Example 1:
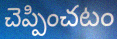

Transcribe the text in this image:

చెప్పించటం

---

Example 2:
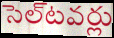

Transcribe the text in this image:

సెల్‌టవర్లు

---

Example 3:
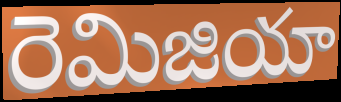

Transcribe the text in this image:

రెమిజియా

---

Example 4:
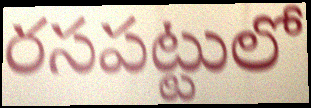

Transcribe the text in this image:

రసపట్టులో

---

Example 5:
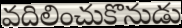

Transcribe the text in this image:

వదిలించుకొనుడు